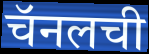
चॅनलची